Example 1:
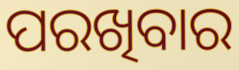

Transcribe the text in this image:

ପରଖିବାର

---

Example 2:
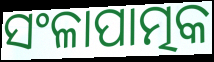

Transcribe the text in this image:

ସଂଳାପାତ୍ମକ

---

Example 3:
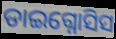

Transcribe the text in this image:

ଡାଇଗ୍ନୋସିସ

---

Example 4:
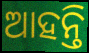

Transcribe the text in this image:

ଆହନ୍ତି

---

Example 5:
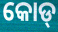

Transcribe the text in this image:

କୋଡ୍